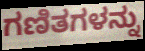
ಗಣಿತಗಳನ್ನು